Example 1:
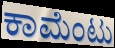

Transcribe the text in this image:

ಕಾಮೆಂಟು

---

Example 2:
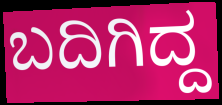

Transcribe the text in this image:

ಬದಿಗಿದ್ದ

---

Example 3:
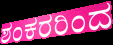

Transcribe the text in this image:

ಶಂಕರರಿಂದ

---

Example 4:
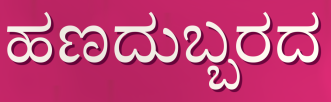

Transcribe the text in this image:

ಹಣದುಬ್ಬರದ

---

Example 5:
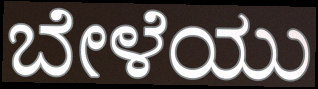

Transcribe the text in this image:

ಬೇಳೆಯು